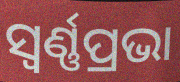
ସ୍ୱର୍ଣ୍ଣପ୍ରଭା